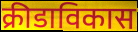
क्रीडाविकास